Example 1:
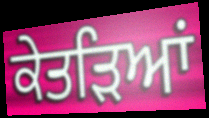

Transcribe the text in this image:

ਕੇਤੜਿਆਂ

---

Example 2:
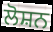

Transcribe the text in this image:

ਲੋਸ਼ਨ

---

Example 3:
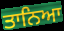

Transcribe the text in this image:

ਤਾਨਿਆ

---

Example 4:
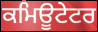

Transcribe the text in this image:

ਕਮਿਊਟੇਟਰ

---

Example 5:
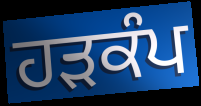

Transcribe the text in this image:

ਹੜਕੰਪ